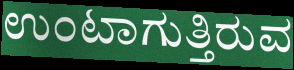
ಉಂಟಾಗುತ್ತಿರುವ